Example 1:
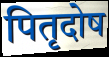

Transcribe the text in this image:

पितृदोष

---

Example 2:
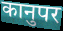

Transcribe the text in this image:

कानुपर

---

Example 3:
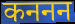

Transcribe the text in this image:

कननन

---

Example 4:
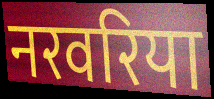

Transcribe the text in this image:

नरवरिया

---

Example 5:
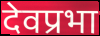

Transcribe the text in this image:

देवप्रभा